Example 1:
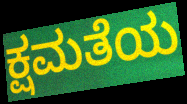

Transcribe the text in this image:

ಕ್ಷಮತೆಯ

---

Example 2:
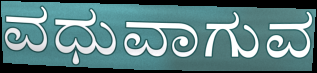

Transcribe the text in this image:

ವಧುವಾಗುವ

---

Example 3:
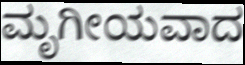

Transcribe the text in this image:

ಮೃಗೀಯವಾದ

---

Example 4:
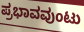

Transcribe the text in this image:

ಪ್ರಭಾವವುಂಟು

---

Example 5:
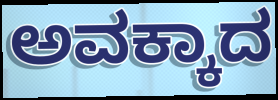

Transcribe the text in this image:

ಅವಕ್ಕಾದ